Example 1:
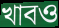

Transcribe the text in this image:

খাবও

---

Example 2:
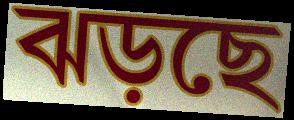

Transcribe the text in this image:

ঝড়ছে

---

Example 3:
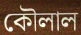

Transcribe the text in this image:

কৌলাল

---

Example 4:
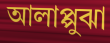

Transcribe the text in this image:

আলাপ্পুঝা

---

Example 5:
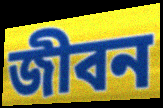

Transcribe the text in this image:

জীবন